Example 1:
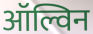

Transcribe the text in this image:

ऑल्विन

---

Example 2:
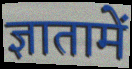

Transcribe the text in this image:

ज्ञातामें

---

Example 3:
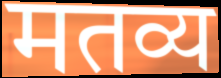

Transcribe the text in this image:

मतव्य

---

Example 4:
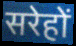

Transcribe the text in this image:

सरेहों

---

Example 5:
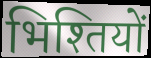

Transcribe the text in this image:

भिश्तियों